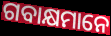
ଗବାକ୍ଷମାନେ